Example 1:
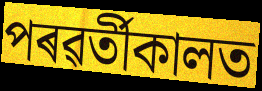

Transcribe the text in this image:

পৰৱৰ্তীকালত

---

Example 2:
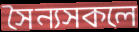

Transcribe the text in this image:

সৈন্যসকলে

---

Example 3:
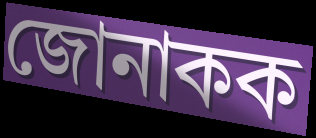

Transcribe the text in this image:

জোনাকক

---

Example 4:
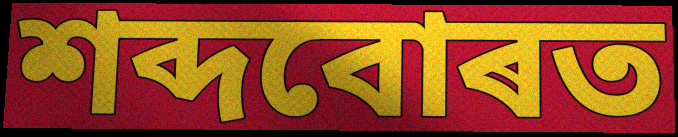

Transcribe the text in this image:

শব্দবোৰত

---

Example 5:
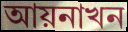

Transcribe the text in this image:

আয়নাখন